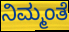
ನಿಮ್ಮಂತೆ